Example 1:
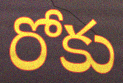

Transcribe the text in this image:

రోకు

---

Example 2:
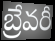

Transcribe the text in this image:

బ్రేవరీ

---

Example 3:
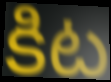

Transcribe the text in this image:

కిట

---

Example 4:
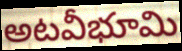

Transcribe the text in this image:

అటవీభూమి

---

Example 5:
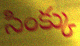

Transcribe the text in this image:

సింక్కు